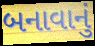
બનાવાનું